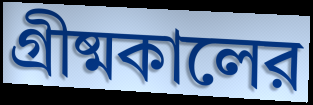
গ্রীষ্মকালের